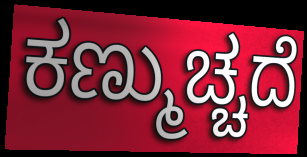
ಕಣ್ಮುಚ್ಚದೆ